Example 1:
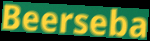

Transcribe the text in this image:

Beerseba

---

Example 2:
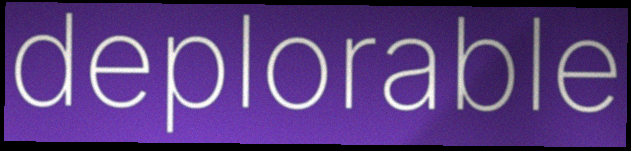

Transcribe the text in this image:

deplorable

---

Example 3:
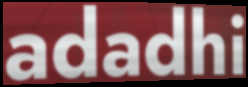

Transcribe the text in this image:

adadhi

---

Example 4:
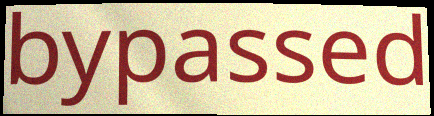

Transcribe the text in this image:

bypassed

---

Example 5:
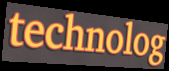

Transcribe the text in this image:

technolog